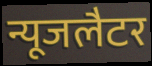
न्यूजलैटर